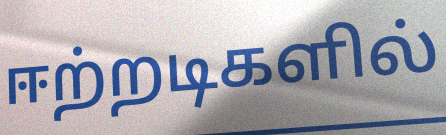
ஈற்றடிகளில்